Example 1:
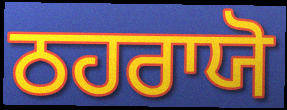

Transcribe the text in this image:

ਠਹਰਾਯੋ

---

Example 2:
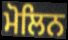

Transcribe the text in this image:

ਮੋਲਿਨ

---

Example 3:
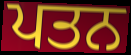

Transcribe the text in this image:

ਪਤਨ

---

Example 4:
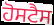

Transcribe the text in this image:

ਹੋਸਟੈਸ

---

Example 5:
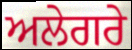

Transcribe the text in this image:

ਅਲੇਗਰੇ